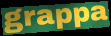
grappa